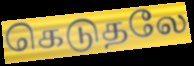
கெடுதலே